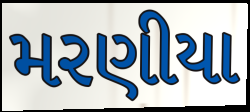
મરણીયા